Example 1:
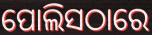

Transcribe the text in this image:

ପୋଲିସଠାରେ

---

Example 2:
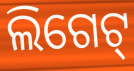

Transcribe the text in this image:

ଲିଗେଟ୍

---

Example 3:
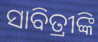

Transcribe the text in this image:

ସାବିତ୍ରୀଙ୍କି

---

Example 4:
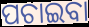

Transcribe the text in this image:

ପଚାଇବା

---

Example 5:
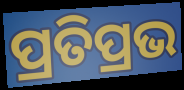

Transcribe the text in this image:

ପ୍ରତିପ୍ରଭ